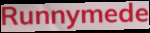
Runnymede